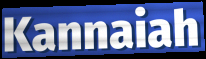
Kannaiah